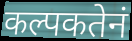
कल्पकतेनं